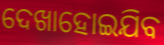
ଦେଖାହୋଇଯିବ